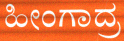
ಹೀಂಗಾದ್ರ